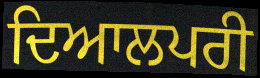
ਦਿਆਲਪਰੀ